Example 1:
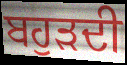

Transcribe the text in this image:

ਬਹੁੜਦੀ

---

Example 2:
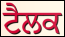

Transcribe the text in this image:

ਟੈਲਕ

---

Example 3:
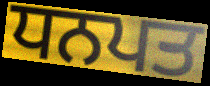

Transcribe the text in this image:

ਧਨਪਤ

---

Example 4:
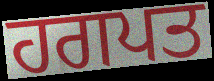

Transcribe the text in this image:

ਹਗਪਤ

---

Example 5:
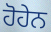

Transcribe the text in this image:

ਹੋਹੇਨ